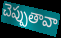
చెప్పుతావా